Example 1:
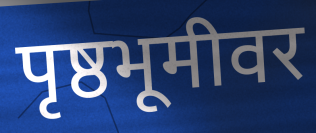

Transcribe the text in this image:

पृष्ठभूमीवर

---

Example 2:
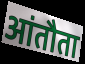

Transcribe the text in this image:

आंतौता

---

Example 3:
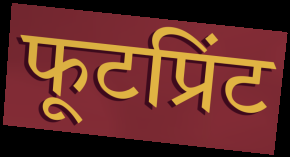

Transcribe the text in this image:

फूटप्रिंट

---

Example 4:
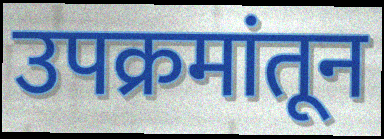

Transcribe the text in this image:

उपक्रमांतून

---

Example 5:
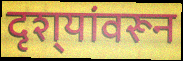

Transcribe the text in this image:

दृश्यांवरून